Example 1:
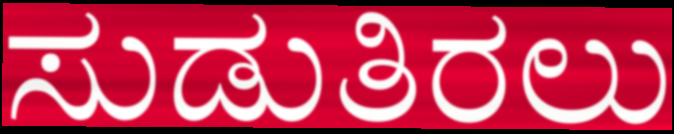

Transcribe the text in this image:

ಸುಡುತಿರಲು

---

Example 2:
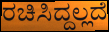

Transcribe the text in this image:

ರಚಿಸಿದ್ದಲ್ಲದೆ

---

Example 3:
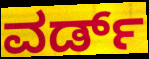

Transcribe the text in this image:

ವರ್ಡ್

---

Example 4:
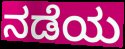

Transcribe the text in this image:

ನಡೆಯ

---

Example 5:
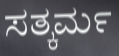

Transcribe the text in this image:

ಸತ್ಕರ್ಮ